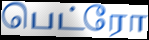
பெட்ரோ